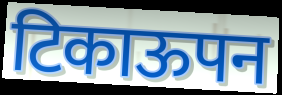
टिकाऊपन